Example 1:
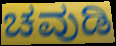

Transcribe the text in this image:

ಚವುಡಿ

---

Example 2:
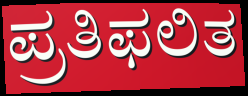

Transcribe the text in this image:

ಪ್ರತಿಫಲಿತ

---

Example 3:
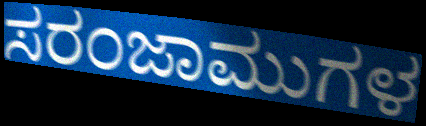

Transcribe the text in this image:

ಸರಂಜಾಮುಗಳ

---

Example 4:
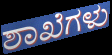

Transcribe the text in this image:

ಶಾಖೆಗಳು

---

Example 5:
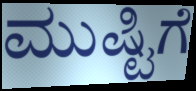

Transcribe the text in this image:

ಮುಷ್ಟಿಗೆ